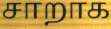
சாறாக